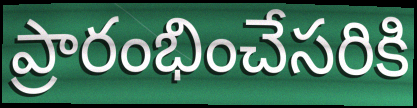
ప్రారంభించేసరికి